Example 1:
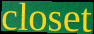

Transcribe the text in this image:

closet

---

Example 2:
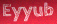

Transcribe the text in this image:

Eyyub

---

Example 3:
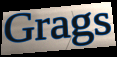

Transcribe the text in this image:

Grags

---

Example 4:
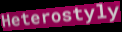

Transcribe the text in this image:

Heterostyly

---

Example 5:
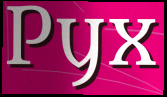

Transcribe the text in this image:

Pyx